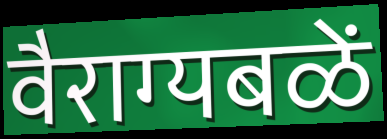
वैराग्यबळें